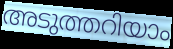
അടുത്തറിയാം